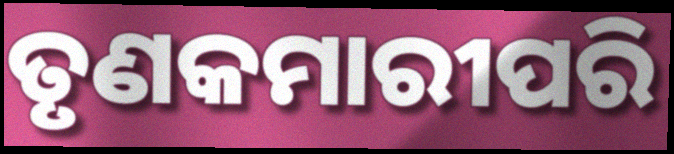
ତୃଣକମାରୀପରି